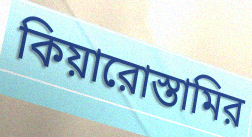
কিয়ারোস্তামির